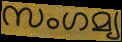
സംഗമ്യ